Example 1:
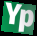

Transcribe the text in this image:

Yp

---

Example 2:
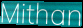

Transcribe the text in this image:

Mithan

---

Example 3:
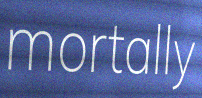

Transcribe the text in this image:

mortally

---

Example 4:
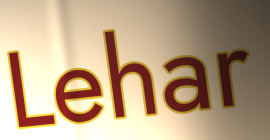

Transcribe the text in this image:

Lehar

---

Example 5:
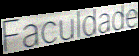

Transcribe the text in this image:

Faculdade